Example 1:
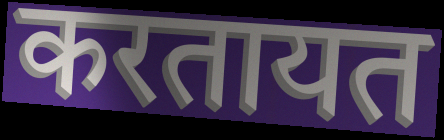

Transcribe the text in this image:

करतायत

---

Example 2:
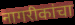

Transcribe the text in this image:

नागरीकांचा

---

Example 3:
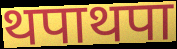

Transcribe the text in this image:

थपाथपा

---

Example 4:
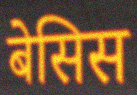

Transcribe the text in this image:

बेसिस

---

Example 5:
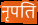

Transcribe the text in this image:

नृपति